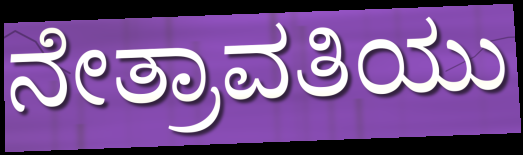
ನೇತ್ರಾವತಿಯು